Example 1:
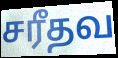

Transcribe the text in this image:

சரீதவ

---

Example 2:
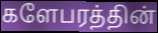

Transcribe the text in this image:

களேபரத்தின்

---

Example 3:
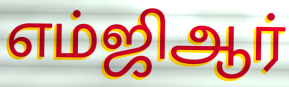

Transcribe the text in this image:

எம்ஜிஆர்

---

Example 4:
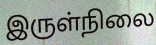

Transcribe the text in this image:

இருள்நிலை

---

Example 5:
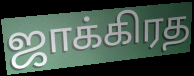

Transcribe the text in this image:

ஜாக்கிரத